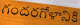
గందరగోళానికి